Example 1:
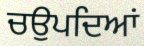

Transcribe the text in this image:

ਚਉਪਦਿਆਂ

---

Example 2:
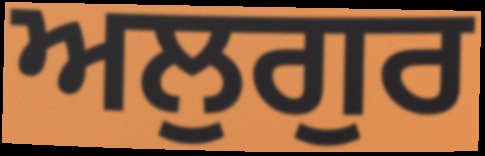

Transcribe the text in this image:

ਅਲੁਗੁਰ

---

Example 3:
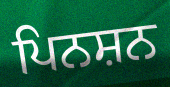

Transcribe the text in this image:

ਪਿਨਸ਼ਨ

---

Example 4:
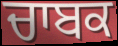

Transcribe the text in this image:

ਚਾਬਕ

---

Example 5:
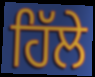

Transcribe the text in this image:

ਹਿੱਲੇ